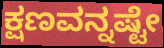
ಕ್ಷಣವನ್ನಷ್ಟೇ